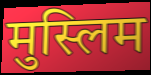
मुस्‍लिम